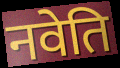
नवेति